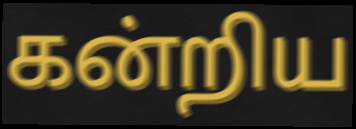
கன்றிய